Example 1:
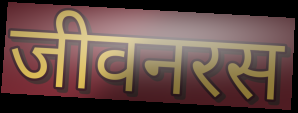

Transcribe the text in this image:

जीवनरस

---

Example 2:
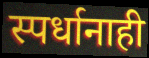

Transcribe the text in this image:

स्पर्धानाही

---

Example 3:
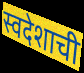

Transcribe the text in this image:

स्वदेशाची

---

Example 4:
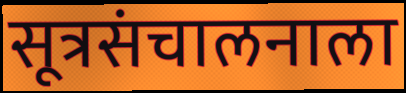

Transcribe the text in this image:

सूत्रसंचालनाला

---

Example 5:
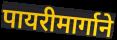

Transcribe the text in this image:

पायरीमार्गाने